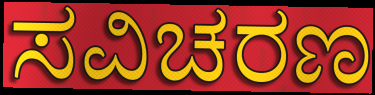
ಸವಿಚರಣ